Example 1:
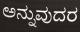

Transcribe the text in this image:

ಅನ್ನುವುದರ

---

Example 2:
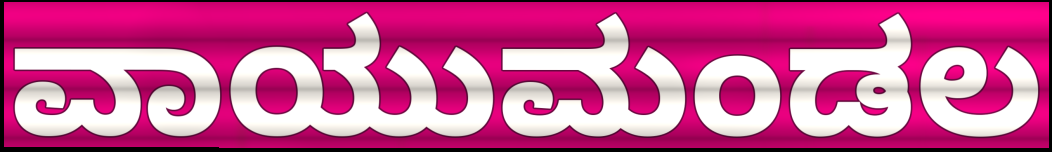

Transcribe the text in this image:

ವಾಯುಮಂಡಲ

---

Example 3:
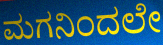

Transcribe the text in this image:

ಮಗನಿಂದಲೇ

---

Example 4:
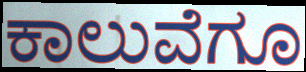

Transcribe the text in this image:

ಕಾಲುವೆಗೂ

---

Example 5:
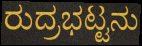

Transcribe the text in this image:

ರುದ್ರಭಟ್ಟನು